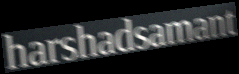
harshadsamant